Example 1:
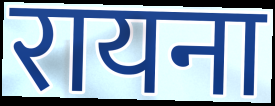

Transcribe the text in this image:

रायना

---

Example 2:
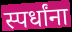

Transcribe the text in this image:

स्पर्धांना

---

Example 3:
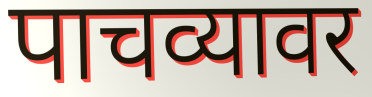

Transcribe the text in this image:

पाचव्यावर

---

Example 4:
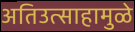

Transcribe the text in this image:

अतिउत्साहामुळे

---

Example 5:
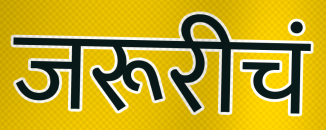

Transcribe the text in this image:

जरूरीचं